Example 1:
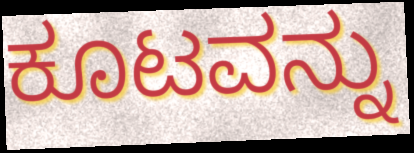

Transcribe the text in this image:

ಕೂಟವನ್ನು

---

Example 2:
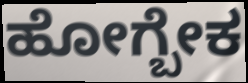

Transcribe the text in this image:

ಹೋಗ್ಬೇಕ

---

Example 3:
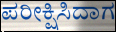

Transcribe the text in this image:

ಪರೀಕ್ಷಿಸಿದಾಗ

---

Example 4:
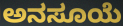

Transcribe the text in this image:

ಅನಸೂಯೆ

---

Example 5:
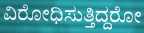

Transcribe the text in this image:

ವಿರೋಧಿಸುತ್ತಿದ್ದರೋ